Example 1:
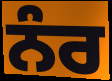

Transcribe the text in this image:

ਨੰਰ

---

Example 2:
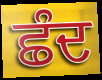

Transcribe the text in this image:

ਛੰਦ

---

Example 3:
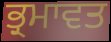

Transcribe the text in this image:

ਭ੍ਰਮਾਵਤ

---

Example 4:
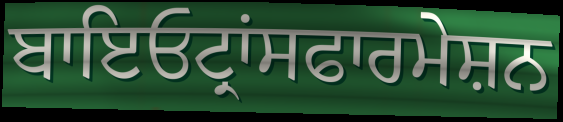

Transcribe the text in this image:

ਬਾਇਓਟ੍ਰਾਂਸਫਾਰਮੇਸ਼ਨ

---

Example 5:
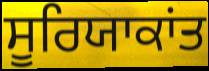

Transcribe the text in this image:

ਸੂਰਿਯਾਕਾਂਤ